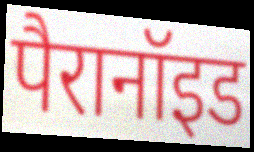
पैरानॉइड